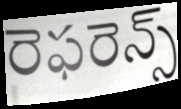
రెఫరెన్స్